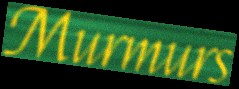
Murmurs